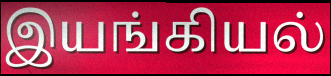
இயங்கியல்